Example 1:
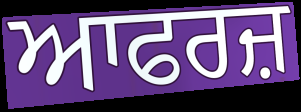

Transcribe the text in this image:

ਆਫਰਜ਼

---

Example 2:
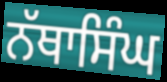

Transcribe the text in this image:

ਨੱਥਾਸਿੰਘ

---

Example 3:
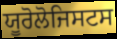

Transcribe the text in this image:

ਯੂਰੋਲੋਜਿਸਟਸ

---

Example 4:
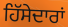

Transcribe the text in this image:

ਹਿੱਸੇਦਾਰਾਂ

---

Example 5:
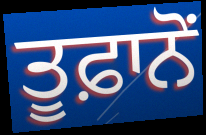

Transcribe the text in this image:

ਤੂਫ਼ਾਨੋਂ